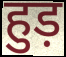
हुड़